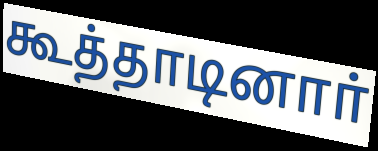
கூத்தாடினார்